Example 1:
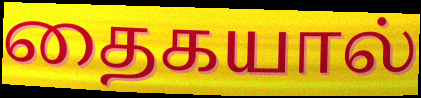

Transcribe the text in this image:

தைகயால்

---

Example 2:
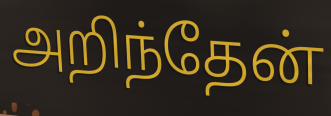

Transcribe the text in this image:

அறிந்தேன்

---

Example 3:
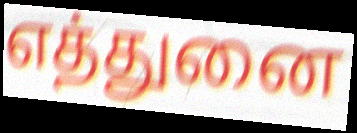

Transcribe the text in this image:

எத்துனை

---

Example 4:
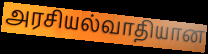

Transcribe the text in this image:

அரசியல்வாதியான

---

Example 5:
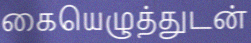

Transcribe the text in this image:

கையெழுத்துடன்